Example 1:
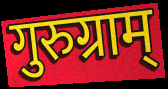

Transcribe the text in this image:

गुरुग्राम्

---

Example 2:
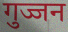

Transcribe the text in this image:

गुज्जन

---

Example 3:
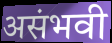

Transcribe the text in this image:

असंभवी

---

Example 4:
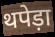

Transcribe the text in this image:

थपेड़ा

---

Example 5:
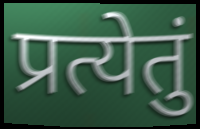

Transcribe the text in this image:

प्रत्येतुं